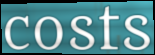
costs